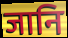
जानि